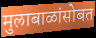
मुलाबाळांसोबत